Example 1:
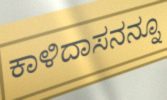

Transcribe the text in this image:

ಕಾಳಿದಾಸನನ್ನೂ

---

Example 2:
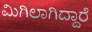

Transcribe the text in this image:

ಮಿಗಿಲಾಗಿದ್ದಾರೆ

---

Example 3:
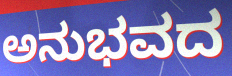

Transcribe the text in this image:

ಅನುಭವದ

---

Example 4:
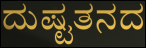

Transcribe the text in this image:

ದುಷ್ಟತನದ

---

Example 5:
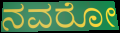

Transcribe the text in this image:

ನವರೋ